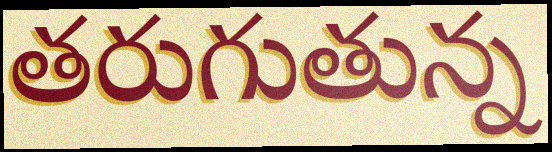
తరుగుతున్న